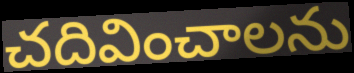
చదివించాలను